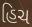
હિચ